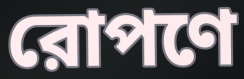
রোপণে